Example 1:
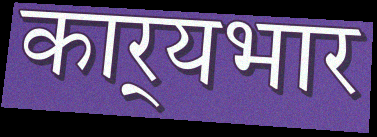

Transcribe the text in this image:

कार्यभार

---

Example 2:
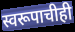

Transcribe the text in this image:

स्वरूपाचीही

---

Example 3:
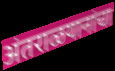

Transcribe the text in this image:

अंतराळयानांचा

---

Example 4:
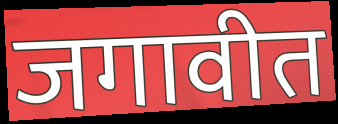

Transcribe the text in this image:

जगावीत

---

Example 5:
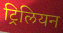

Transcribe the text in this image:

ट्रिलियन